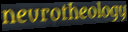
neurotheology